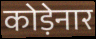
कोड़ेनार